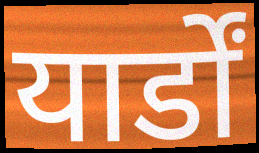
यार्डों